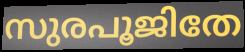
സുരപൂജിതേ